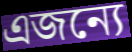
এজন্যে